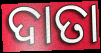
ଦାତା